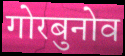
गोरबुनोव